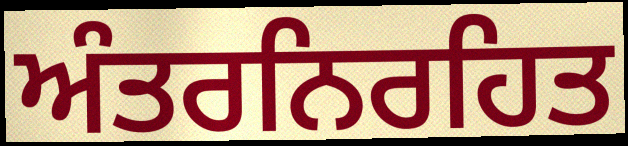
ਅੰਤਰਨਿਰਹਿਤ